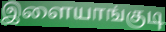
இளையாங்குடி